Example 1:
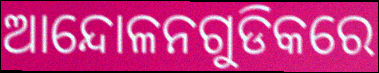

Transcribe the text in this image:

ଆନ୍ଦୋଳନଗୁଡିକରେ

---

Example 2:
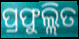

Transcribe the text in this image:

ପ୍ରଫୁଲ୍ଲିତ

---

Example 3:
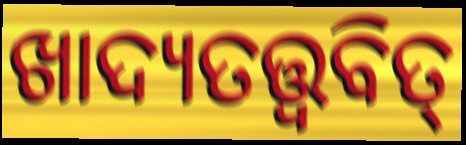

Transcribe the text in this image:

ଖାଦ୍ୟତତ୍ତ୍ୱବିତ୍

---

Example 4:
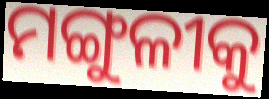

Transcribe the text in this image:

ମଙ୍ଗୁଳୀକୁ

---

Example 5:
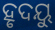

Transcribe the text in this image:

ହୃଦୟୁ